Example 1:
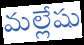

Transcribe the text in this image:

మల్లేషు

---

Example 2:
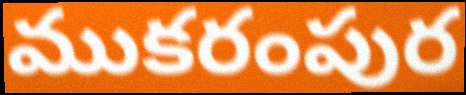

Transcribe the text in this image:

ముకరంపుర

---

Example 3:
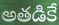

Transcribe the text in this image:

అతడికే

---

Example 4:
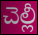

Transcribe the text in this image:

చెల్లీ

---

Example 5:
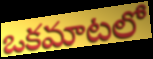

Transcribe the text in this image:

ఒకమాటలో